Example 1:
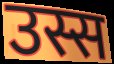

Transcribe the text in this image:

उस्स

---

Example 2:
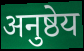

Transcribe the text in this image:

अनुष्ठेय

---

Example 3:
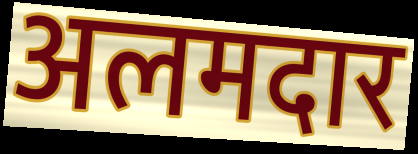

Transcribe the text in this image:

अलमदार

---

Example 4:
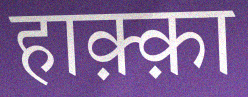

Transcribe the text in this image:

हाक़्क़ा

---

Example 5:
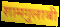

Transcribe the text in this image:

शामगुलाबी